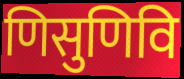
णिसुणिवि